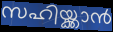
സഹിയ്ക്കാൻ